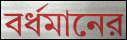
বর্ধমানের